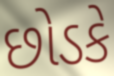
છોડકે